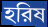
হরিষ